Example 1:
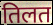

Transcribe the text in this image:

तिलत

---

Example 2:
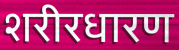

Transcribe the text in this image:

शरीरधारण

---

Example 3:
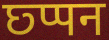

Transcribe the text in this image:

छ्प्पन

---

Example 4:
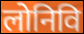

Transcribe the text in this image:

लोनिवि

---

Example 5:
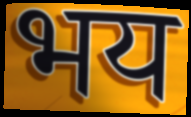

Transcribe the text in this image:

भय